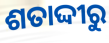
ଶତାଦ୍ଦୀରୁ